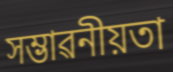
সম্ভাৱনীয়তা